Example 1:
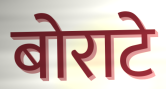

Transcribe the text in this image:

बोराटे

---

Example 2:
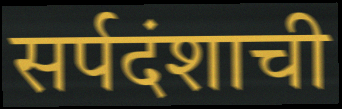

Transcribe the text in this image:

सर्पदंशाची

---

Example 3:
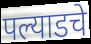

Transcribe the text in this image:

पल्याडचे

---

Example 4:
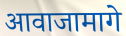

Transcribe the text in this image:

आवाजामागे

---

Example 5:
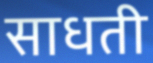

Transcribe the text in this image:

साधती